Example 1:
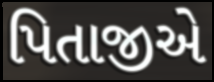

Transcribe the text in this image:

પિતાજીએ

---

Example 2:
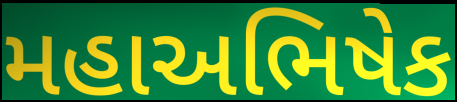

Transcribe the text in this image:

મહાઅભિષેક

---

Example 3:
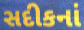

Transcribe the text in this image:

સદીકનાં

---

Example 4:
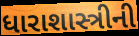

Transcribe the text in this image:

ધારાશાસ્ત્રીની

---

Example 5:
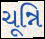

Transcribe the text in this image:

ચૂન્નિ